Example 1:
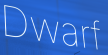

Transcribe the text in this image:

Dwarf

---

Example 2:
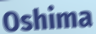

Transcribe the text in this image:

Oshima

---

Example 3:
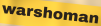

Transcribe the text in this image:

warshoman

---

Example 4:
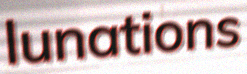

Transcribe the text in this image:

lunations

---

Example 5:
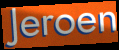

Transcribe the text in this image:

Jeroen